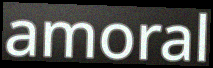
amoral